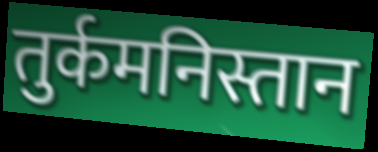
तुर्कमनिस्तान